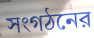
সংগঠনের